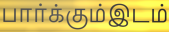
பார்க்கும்இடம்